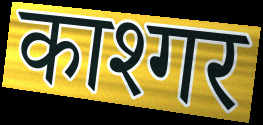
काश्गर